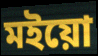
মইয়ো